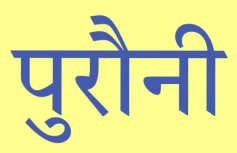
पुरौनी